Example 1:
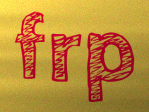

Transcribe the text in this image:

frp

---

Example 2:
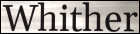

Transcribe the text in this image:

Whither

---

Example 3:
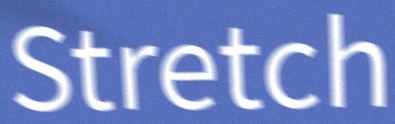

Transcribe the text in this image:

Stretch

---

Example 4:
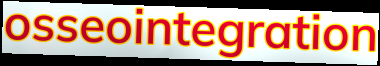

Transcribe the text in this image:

osseointegration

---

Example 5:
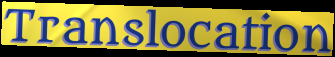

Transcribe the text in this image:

Translocation